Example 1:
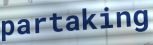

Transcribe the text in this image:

partaking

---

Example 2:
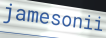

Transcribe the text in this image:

jamesonii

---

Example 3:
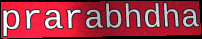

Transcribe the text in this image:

prarabhdha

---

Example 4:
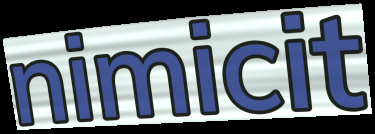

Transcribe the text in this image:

nimicit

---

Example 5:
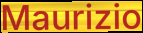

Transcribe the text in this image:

Maurizio